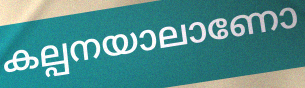
കല്പനയാലാണോ